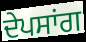
ਦੇਪਸਾਂਗ